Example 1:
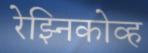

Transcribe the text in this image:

रेझ्निकोव्ह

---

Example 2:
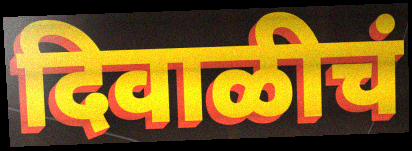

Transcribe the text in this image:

दिवाळीचं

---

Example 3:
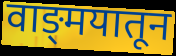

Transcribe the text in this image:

वाङ्मयातून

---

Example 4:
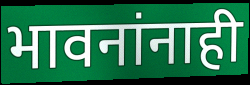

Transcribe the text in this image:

भावनांनाही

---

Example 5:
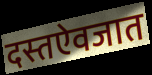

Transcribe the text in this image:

दस्तऐवजात